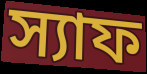
স্যাফ